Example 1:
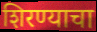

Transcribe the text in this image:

शिरण्याचा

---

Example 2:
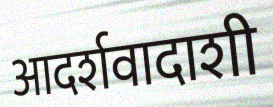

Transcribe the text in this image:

आदर्शवादाशी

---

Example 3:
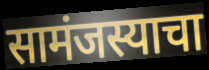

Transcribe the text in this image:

सामंजस्याचा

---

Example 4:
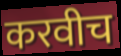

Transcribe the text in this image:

करवीच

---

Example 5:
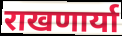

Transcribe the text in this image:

राखणार्या